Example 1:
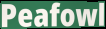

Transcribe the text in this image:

Peafowl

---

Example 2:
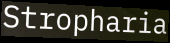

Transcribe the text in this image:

Stropharia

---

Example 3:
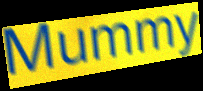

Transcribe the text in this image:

Mummy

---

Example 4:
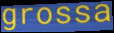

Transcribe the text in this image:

grossa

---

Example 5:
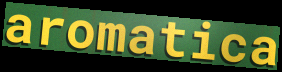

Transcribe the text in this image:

aromatica